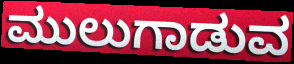
ಮುಲುಗಾಡುವ